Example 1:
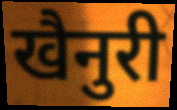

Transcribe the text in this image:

खैनुरी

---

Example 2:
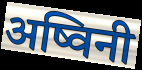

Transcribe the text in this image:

अष्विनी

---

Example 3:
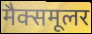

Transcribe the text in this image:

मैक्समूलर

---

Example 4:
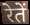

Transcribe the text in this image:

रेतें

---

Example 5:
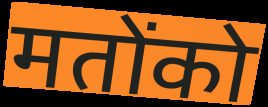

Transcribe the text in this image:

मतोंको